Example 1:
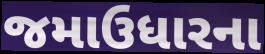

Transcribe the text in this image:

જમાઉધારના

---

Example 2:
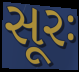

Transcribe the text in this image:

સૂરઃ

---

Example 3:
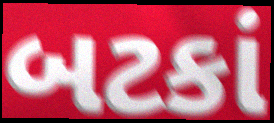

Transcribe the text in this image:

બટકાં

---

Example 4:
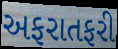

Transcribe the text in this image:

અફરાતફરી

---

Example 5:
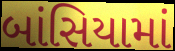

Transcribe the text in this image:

બાંસિયામાં